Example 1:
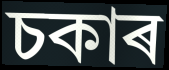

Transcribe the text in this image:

চকাৰ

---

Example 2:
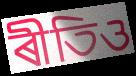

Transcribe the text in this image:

ৰীতিও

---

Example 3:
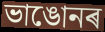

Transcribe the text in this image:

ভাঙোনৰ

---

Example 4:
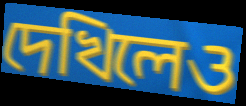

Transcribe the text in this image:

দেখিলেও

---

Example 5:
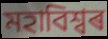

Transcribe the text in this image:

মহাবিশ্বৰ